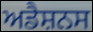
ਅਡੈਸ਼ਨਸ